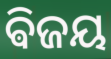
ଵିଜୟ